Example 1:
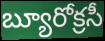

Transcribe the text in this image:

బ్యూరోక్రసీ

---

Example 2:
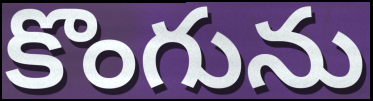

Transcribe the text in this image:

కొంగును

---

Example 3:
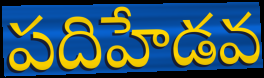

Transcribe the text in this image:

పదిహేడవ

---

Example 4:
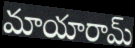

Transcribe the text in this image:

మాయారామ్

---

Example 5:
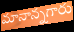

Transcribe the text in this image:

మానాన్నగారు